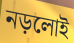
নড়লোই